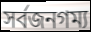
সর্বজনগম্য